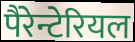
पैरेन्टेरियल